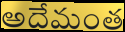
అదేమంత